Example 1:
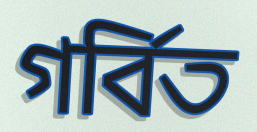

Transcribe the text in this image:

গৰ্বিত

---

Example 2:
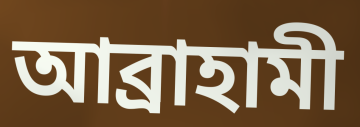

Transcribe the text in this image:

আব্ৰাহামী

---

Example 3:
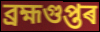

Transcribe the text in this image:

ব্ৰহ্মগুপ্তৰ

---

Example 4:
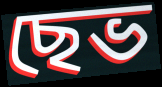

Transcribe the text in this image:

ছেভ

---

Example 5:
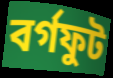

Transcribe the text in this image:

বৰ্গফুট